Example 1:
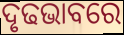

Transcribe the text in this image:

ଦୃଢଭାବରେ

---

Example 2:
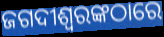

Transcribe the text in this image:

ଜଗଦୀଶ୍ୱରଙ୍କଠାରେ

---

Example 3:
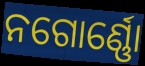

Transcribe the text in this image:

ନଗୋର୍ଣ୍ଣୋ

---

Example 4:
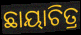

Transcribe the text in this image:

ଛାୟାଚିତ୍ର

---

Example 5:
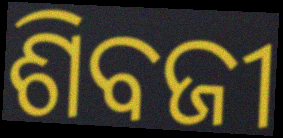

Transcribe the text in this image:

ଶିବଜୀ